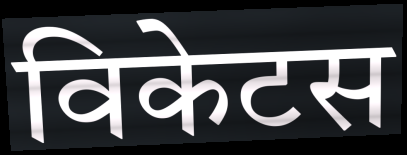
विकेटस